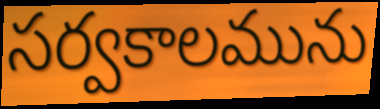
సర్వకాలమును